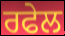
ਰਫੇਲ